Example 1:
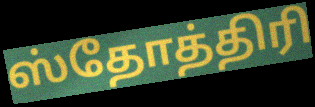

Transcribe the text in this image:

ஸ்தோத்திரி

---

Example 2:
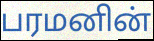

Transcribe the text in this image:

பரமனின்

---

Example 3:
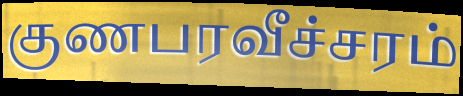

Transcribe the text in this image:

குணபரவீச்சரம்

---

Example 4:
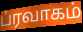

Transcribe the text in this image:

ப்ரவாகம்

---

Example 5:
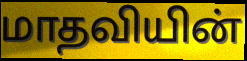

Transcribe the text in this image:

மாதவியின்